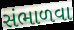
સંભાળવા